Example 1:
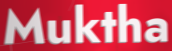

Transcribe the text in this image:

Muktha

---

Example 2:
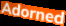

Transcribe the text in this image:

Adorned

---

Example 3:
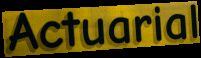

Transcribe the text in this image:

Actuarial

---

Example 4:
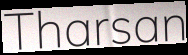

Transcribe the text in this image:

Tharsan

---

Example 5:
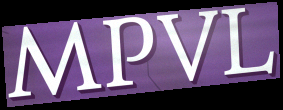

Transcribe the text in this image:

MPVL